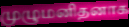
முழுமனிதனாக